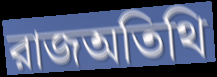
রাজঅতিথি